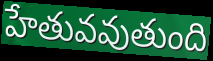
హేతువవుతుంది